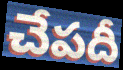
చేపదీ